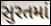
સુરતમાં